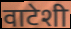
वाटेशी